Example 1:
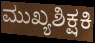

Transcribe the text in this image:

ಮುಖ್ಯಶಿಕ್ಷಕಿ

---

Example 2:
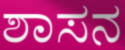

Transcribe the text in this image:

ಶಾಸನ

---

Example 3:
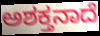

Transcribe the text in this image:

ಅಶಕ್ತನಾದೆ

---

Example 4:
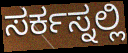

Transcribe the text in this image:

ಸರ್ಕಸ್ನಲ್ಲಿ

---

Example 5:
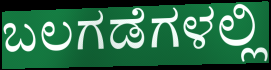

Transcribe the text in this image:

ಬಲಗಡೆಗಳಲ್ಲಿ